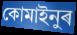
কোমাইনুৰ